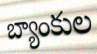
బ్యాంకుల